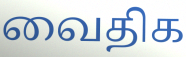
வைதிக